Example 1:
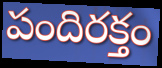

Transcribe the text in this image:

పందిరక్తం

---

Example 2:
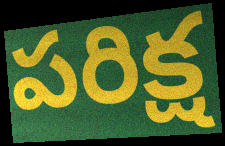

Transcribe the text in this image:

పరిక్ష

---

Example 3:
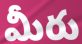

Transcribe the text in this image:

మీరు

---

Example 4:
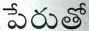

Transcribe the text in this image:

పేరుతో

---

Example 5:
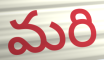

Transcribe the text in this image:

మరి